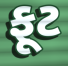
ફૂટ